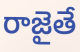
రాజైతే